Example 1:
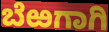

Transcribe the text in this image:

ಬೆಱಗಾಗಿ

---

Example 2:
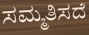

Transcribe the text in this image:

ಸಮ್ಮತಿಸದೆ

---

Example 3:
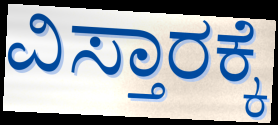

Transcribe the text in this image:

ವಿಸ್ತಾರಕ್ಕೆ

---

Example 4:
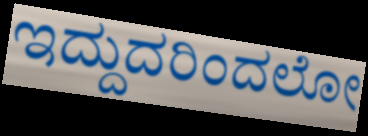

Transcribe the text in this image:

ಇದ್ದುದರಿಂದಲೋ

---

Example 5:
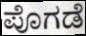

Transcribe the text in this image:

ಪೊಗಡೆ